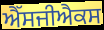
ਐੱਸਜੀਐਕਸ